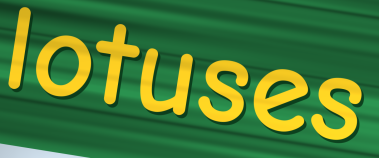
lotuses